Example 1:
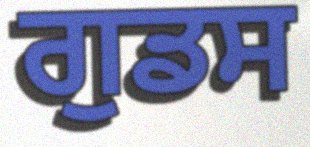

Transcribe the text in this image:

ਗੁਡਸ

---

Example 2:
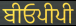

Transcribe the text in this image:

ਬੀਓਪੀਪੀ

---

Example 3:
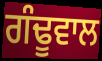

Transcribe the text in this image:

ਗੰਢੂਵਾਲ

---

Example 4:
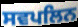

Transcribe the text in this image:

ਸਵਪਲਿਨ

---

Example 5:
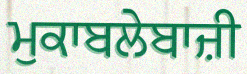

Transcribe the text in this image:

ਮੁਕਾਬਲੇਬਾਜ਼ੀ